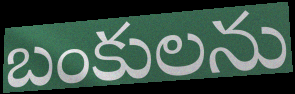
బంకులను